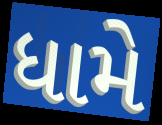
ધામે